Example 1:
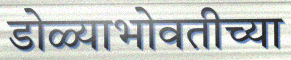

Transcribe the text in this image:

डोळ्याभोवतीच्या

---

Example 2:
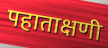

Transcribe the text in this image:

पहाताक्षणी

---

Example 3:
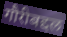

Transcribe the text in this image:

गौरीबद्दल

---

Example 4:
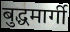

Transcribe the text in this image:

बुद्धमार्गी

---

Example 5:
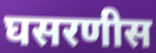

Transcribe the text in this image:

घसरणीस